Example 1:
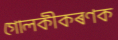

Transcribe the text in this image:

গোলকীকৰণক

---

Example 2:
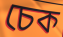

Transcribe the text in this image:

চেক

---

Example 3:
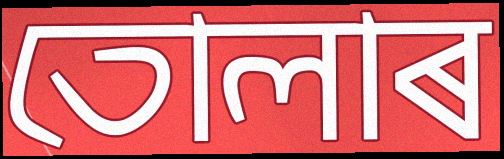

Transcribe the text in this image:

তোলাৰ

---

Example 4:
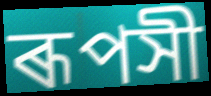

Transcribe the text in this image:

ৰূপসী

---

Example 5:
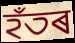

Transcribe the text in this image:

হঁতৰ